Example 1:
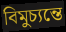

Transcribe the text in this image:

বিমুচ্যন্তে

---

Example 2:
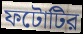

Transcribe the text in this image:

ফটোটির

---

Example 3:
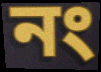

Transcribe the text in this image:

নং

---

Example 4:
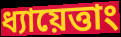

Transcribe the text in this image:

ধ্যায়েত্তাং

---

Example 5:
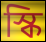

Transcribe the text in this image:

স্কি